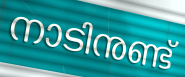
നാടിനുണ്ട്